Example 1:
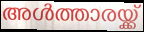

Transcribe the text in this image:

അൾത്താരയ്ക്ക്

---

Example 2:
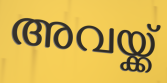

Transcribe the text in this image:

അവയ്ക്ക്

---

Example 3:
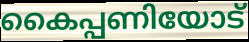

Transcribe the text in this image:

കൈപ്പണിയോട്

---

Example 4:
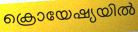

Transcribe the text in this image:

ക്രൊയേഷ്യയിൽ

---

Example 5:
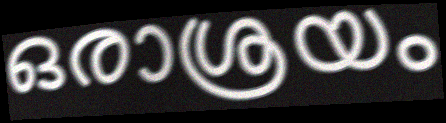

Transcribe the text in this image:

ഒരാശ്രയം